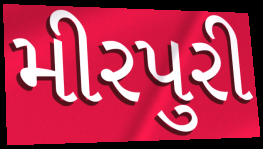
મીરપુરી